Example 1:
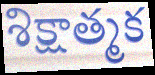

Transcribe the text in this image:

శిక్షాత్మక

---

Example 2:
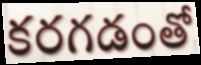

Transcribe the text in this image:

కరగడంతో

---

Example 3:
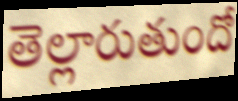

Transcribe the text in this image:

తెల్లారుతుందో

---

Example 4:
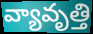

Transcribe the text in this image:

వ్యావృత్తి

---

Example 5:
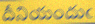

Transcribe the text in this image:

దీనియందుఁ